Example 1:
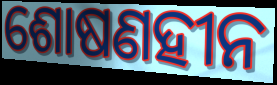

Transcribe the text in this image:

ଶୋଷଣହୀନ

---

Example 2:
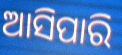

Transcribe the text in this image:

ଆସିପାରି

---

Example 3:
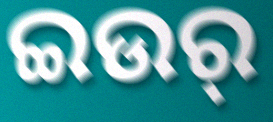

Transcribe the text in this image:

ଇଉର୍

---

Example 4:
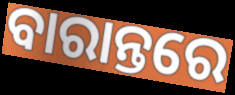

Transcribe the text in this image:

ବାରାନ୍ତରେ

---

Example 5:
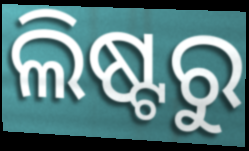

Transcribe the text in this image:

ଲିଷ୍ଟରୁ